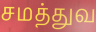
சமத்துவ